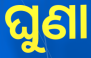
ଘୁଣା